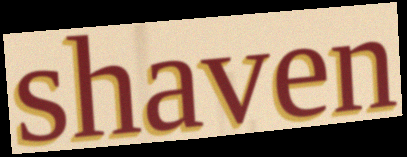
shaven